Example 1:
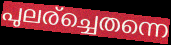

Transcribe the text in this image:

പുലര്ച്ചെതന്നെ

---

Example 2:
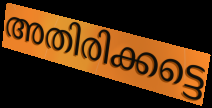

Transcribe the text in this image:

അതിരിക്കട്ടെ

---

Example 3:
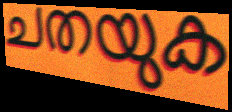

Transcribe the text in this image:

ചതയുക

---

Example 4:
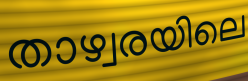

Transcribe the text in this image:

താഴ്വരയിലെ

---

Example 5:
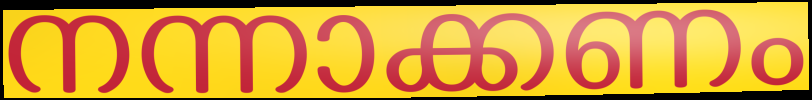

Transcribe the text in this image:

നന്നാക്കണം